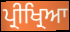
ਪ੍ਰੀਖ੍ਰਿਆ